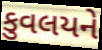
કુવલયને